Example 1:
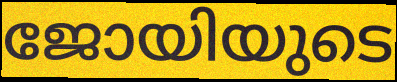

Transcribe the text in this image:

ജോയിയുടെ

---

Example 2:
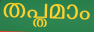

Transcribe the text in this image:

തപ്തമാം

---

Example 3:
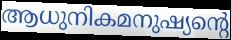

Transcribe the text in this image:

ആധുനികമനുഷ്യന്റെ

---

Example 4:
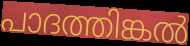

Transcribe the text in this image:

പാദത്തിങ്കൽ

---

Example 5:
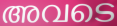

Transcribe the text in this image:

അവടെ